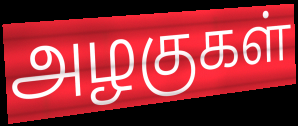
அழகுகள்